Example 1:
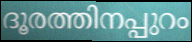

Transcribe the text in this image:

ദൂരത്തിനപ്പുറം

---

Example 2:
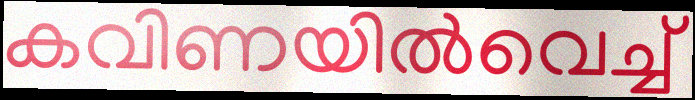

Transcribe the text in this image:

കവിണയിൽവെച്ച്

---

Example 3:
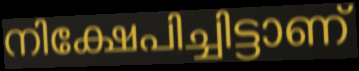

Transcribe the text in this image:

നിക്ഷേപിച്ചിട്ടാണ്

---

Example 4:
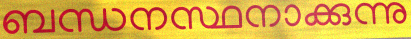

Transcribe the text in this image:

ബന്ധനസ്ഥനാക്കുന്നു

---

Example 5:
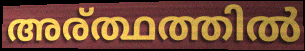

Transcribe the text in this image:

അര്ത്ഥത്തിൽ